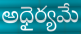
అధైర్యమే